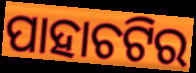
ପାହାଚଟିର